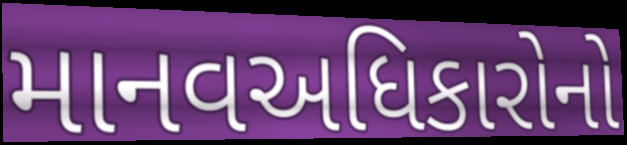
માનવઅધિકારોનો